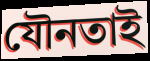
যৌনতাই